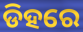
ଡିହରେ